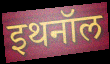
इथनॉल